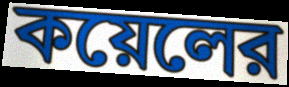
কয়েলের